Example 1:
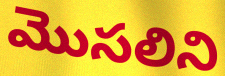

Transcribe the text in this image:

మొసలిని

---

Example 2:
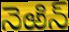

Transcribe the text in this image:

నెఱిన్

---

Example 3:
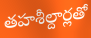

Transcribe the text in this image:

తహశీల్దార్లతో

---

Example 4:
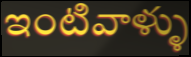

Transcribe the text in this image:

ఇంటివాళ్ళు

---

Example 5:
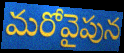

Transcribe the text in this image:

మరోవైపున